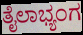
ತೈಲಾಭ್ಯಂಗ